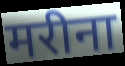
मरीना